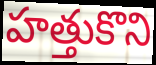
హత్తుకొని